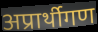
अप्रार्थीगण